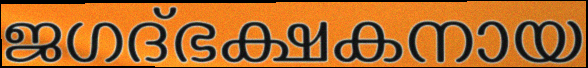
ജഗദ്ഭക്ഷകനായ